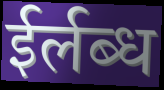
ईर्लब्ध